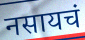
नसायचं